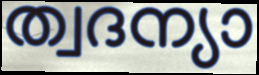
ത്വദന്യാ